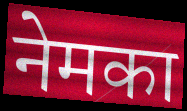
नेमका